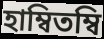
হাম্বিতম্বি